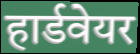
हार्डवेयर